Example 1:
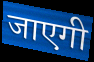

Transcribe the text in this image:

जाएगी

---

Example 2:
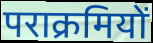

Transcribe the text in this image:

पराक्रमियों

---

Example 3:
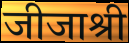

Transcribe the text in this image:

जीजाश्री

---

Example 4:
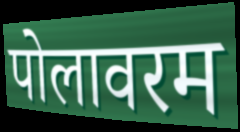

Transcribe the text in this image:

पोलावरम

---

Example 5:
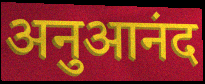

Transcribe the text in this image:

अनुआनंद